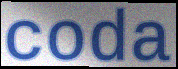
coda